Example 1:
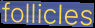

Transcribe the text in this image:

follicles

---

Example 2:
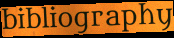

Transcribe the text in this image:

bibliography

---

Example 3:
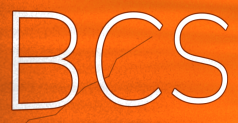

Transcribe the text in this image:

BCS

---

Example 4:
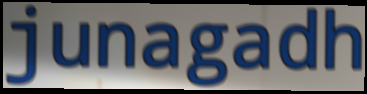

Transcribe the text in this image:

junagadh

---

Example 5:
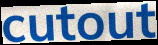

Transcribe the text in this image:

cutout